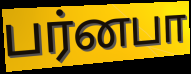
பர்னபா